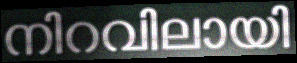
നിറവിലായി